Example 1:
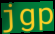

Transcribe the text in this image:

jgp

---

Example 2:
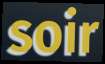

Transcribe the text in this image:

soir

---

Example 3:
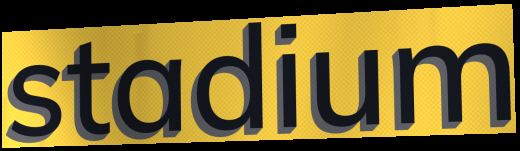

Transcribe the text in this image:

stadium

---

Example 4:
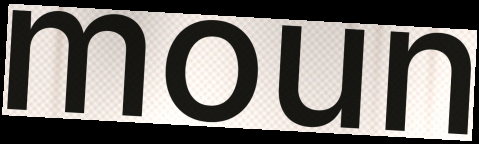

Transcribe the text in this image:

moun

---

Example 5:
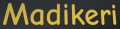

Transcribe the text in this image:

Madikeri